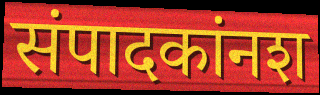
संपादकांनश